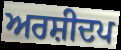
ਅਰਸ਼ੀਦਪ